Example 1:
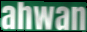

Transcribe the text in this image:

ahwan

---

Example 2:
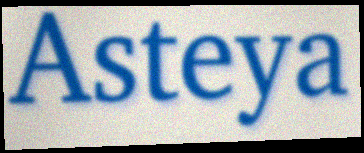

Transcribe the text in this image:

Asteya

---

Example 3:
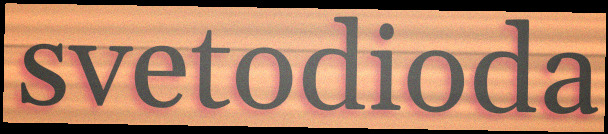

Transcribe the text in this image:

svetodioda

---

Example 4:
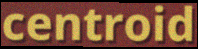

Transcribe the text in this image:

centroid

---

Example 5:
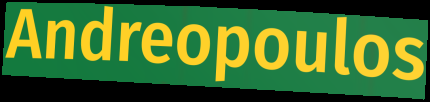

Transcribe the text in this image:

Andreopoulos